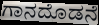
ಗಾನದೊಡನೆ